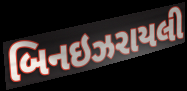
બિનઇઝરાયલી